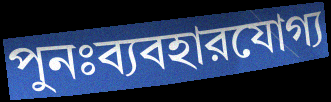
পুনঃব্যবহারযোগ্য